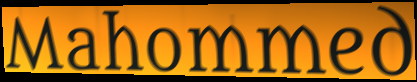
Mahommed